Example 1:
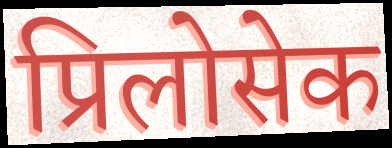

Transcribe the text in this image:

प्रिलोसेक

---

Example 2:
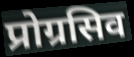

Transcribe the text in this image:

प्रोग्रसिव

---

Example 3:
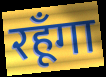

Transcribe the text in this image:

रहूँगा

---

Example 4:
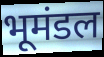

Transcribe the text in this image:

भूमंडल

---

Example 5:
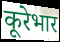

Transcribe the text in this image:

कूरेभार